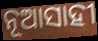
ନୂଆସାହୀ